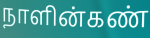
நாளின்கண்